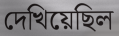
দেখিয়েছিল